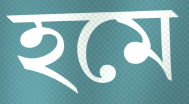
হমে